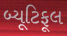
બ્યૂટિફૂલ